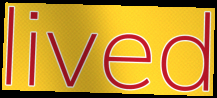
lived